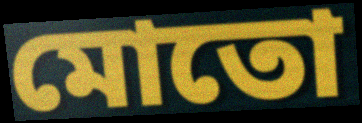
মোতো